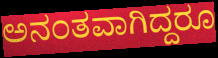
ಅನಂತವಾಗಿದ್ದರೂ